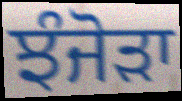
ਝੰਜੋੜਾ